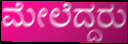
ಮೇಲೆದ್ದರು